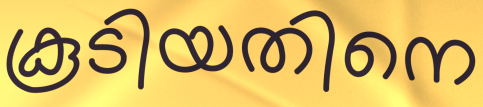
കൂടിയതിനെ